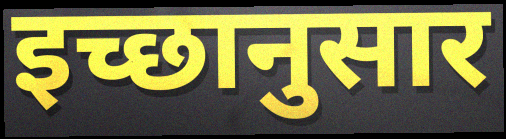
इच्छानुसार